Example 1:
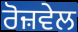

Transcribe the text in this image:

ਰੋਜ਼ਵੇਲ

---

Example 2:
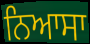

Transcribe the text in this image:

ਨਿਆਸਾ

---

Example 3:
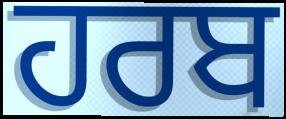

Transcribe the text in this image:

ਹਰਬ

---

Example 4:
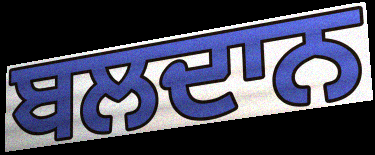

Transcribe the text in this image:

ਬਲਦਾਨ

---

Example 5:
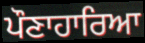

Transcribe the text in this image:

ਪੌਣਾਹਾਰਿਆ